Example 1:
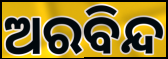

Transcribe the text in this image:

ଅରବିନ୍ଦ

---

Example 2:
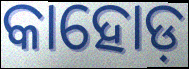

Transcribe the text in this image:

କାହୋଡ଼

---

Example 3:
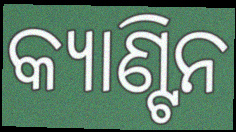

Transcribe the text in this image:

କ୍ୟାଣ୍ଟିନ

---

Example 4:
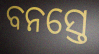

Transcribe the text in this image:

ବନସ୍ତେ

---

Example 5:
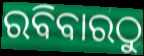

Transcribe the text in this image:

ରବିବାରଠୁ